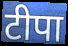
टीपा